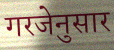
गरजेनुसार